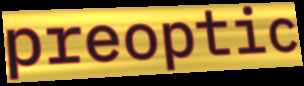
preoptic